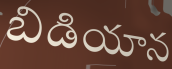
బిడియాన